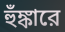
হুঁঙ্কারে